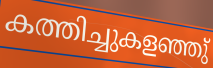
കത്തിച്ചുകളഞ്ഞു്